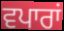
ਵਪਾਰਾਂ